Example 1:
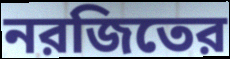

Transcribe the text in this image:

নরজিতের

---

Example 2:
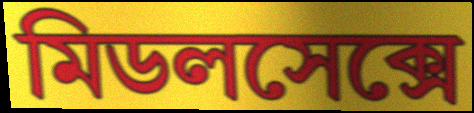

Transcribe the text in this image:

মিডলসেক্সে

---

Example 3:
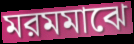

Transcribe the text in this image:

মরমমাঝে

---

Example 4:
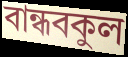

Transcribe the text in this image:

বান্ধবকুল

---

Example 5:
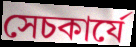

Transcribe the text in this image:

সেচকার্যে